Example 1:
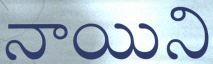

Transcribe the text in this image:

నాయిని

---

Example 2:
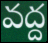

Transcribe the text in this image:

వద్ద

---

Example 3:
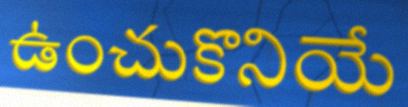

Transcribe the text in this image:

ఉంచుకొనియే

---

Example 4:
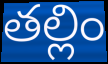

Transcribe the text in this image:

తల్లిం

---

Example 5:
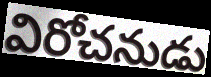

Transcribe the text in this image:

విరోచనుడు